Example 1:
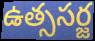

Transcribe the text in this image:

ఉత్ససర్జ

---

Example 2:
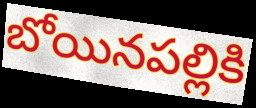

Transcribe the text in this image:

బోయినపల్లికి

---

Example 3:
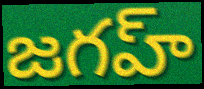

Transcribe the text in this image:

జగహ్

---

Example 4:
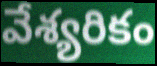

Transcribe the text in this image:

వేశ్యరికం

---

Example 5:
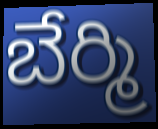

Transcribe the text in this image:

బేర్మి